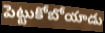
పెట్టుకోబోయాడు